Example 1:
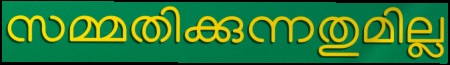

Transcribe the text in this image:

സമ്മതിക്കുന്നതുമില്ല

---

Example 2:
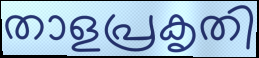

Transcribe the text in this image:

താളപ്രകൃതി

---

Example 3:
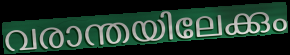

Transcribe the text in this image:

വരാന്തയിലേക്കും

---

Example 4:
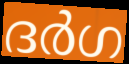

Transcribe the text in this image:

ദർഗ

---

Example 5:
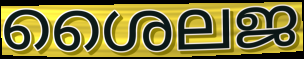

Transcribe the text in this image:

ശൈലജ